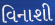
વિનાશી